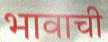
भावाची